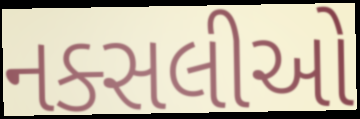
નક્સલીઓ